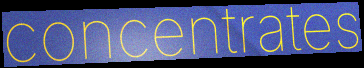
concentrates